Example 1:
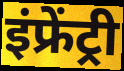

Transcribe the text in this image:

इंफ्रेंट्री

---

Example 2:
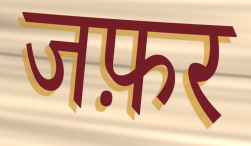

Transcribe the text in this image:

जफ़र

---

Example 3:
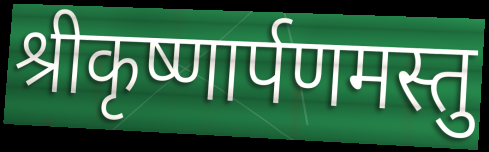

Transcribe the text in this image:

श्रीकृष्णार्पणमस्तु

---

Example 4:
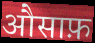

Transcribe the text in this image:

औसाफ़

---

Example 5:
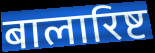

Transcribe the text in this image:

बालारिष्ट